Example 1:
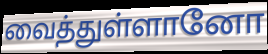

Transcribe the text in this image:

வைத்துள்ளானோ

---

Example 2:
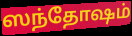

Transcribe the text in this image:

ஸந்தோஷம்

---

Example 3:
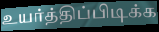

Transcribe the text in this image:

உயர்த்திப்பிடிக்க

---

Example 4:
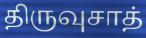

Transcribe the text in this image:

திருவுசாத்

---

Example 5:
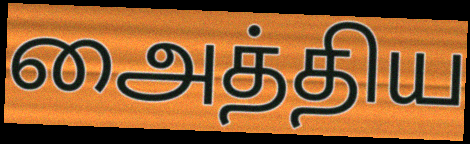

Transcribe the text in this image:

அைத்திய